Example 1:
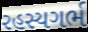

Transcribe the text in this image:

રહસ્યગર્ભ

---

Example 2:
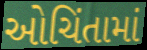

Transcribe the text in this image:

ઓચિંતામાં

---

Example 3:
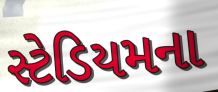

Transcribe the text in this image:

સ્ટેડિયમના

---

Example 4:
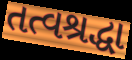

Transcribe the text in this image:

તત્વશ્રદ્ધા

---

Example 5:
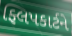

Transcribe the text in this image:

ફ્લિપકાર્ટને